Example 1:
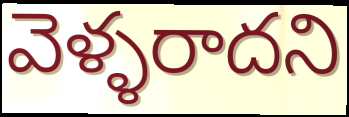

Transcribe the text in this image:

వెళ్ళరాదని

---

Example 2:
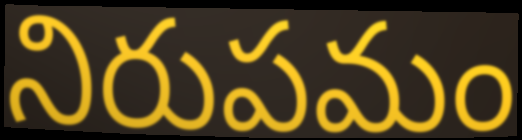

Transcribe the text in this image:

నిరుపమం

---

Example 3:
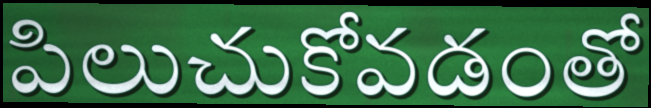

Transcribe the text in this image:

పిలుచుకోవడంతో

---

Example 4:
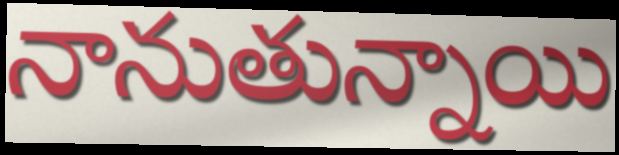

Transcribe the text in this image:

నానుతున్నాయి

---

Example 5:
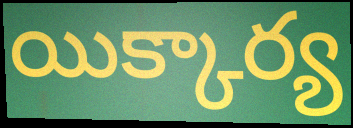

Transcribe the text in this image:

యిక్కార్య